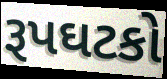
રૂપઘટકો